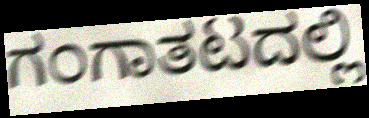
ಗಂಗಾತಟದಲ್ಲಿ